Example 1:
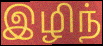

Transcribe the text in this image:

இழிந்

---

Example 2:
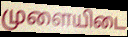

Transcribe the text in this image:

முளையிடை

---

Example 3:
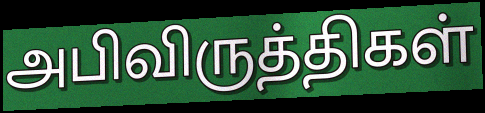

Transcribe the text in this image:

அபிவிருத்திகள்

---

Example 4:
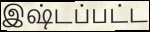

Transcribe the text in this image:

இஷ்டப்பட்ட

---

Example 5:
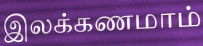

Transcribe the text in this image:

இலக்கணமாம்